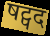
षट्पद